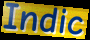
Indic